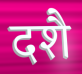
दशै